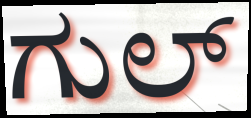
ಗುಲ್